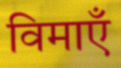
विमाएँ